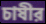
চাষীর